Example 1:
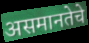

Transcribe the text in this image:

असमानतेचे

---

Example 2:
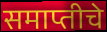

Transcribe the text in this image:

समाप्तीचे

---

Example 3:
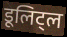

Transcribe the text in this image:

डूलिट्ल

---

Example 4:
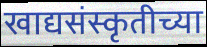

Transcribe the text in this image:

खाद्यसंस्कृतीच्या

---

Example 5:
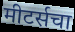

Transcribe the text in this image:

मीटर्सचा